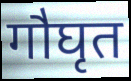
गौघृत